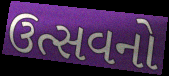
ઉત્સવનો